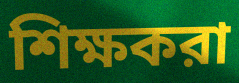
শিক্ষকরা